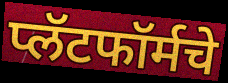
प्लॅटफॉर्मचे